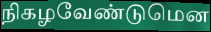
நிகழவேண்டுமென